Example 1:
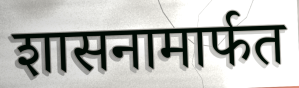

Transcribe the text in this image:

शासनामार्फत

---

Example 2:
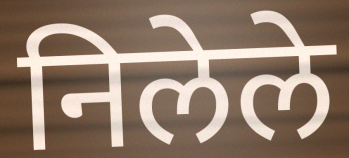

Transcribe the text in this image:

निलेले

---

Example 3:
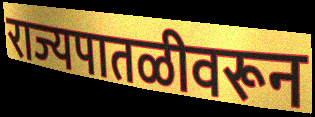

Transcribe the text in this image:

राज्यपातळीवरून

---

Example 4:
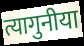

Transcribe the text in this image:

त्यागुनीया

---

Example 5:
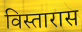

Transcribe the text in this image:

विस्तारास